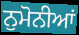
ਨੁਮੋਨੀਆਂ